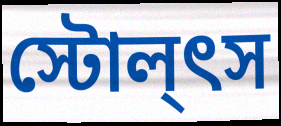
স্টোল্ৎস